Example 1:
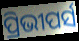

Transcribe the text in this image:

ପ୍ରିଭୀପର୍ସ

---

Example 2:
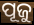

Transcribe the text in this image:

ପୂଜୁ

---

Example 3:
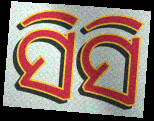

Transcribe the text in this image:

ସିସି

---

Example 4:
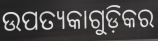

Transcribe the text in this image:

ଉପତ୍ୟକାଗୁଡ଼ିକର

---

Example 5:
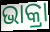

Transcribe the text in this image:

ଭାକ୍ରା